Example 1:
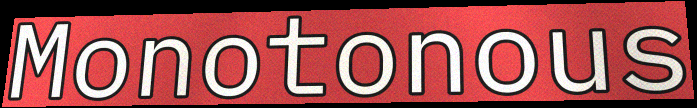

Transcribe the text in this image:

Monotonous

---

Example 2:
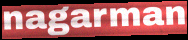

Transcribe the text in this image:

nagarman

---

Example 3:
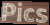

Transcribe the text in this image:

Pics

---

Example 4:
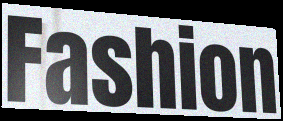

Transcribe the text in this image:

Fashion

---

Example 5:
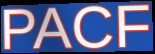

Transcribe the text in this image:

PACF